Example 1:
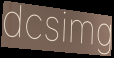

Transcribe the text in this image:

dcsimg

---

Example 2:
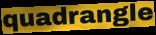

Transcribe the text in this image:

quadrangle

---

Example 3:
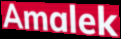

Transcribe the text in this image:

Amalek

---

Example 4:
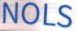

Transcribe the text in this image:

NOLS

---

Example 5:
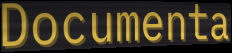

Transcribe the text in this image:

Documenta